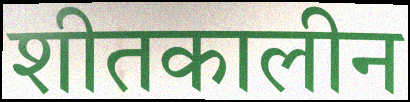
शीतकालीन